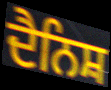
ਦੈਨਿਸ਼